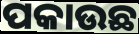
ପକାଉଛ